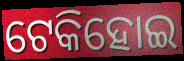
ଟେକିହୋଇ